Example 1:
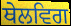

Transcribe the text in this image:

ਥੇਲਵਿਗ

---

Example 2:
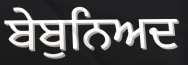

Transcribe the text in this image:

ਬੇਬੁਨਿਅਦ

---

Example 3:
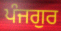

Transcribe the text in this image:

ਪੰਜਗੁਰ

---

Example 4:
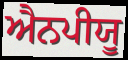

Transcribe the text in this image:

ਐਨਪੀਯੂ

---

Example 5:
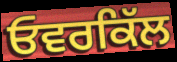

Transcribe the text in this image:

ਓਵਰਕਿੱਲ